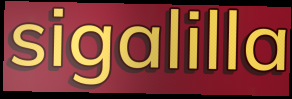
sigalilla